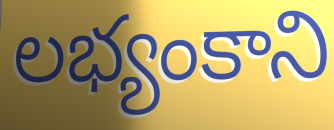
లభ్యంకాని